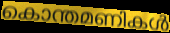
കൊന്തമണികൾ